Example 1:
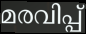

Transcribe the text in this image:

മരവിപ്പ്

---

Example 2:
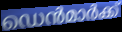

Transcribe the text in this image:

ഡെൻമാർക്ക്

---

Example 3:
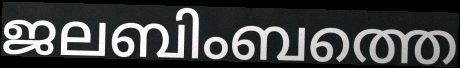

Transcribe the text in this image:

ജലബിംബത്തെ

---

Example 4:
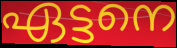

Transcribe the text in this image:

ഏട്ടനെ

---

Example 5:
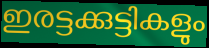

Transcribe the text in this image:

ഇരട്ടക്കുട്ടികളും